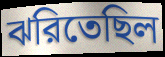
ঝরিতেছিল